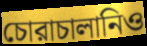
চোরাচালানিও